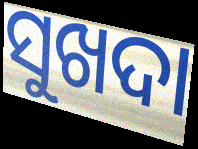
ସୁଖଦା